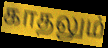
காதலும்